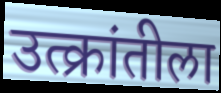
उत्क्रांतीला